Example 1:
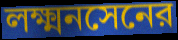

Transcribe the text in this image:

লক্ষ্মনসেনের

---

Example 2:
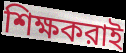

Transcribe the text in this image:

শিক্ষকরাই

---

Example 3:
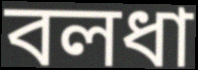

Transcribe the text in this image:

বলধা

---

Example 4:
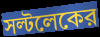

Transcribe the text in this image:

সল্টলেকের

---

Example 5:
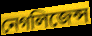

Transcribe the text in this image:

নেগলিজেন্স